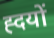
ह्दयों